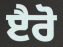
ੲੈਰੋ